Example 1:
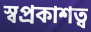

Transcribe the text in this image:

স্বপ্রকাশত্ব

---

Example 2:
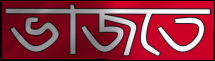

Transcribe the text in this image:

ভাজতে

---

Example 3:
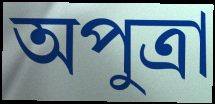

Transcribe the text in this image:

অপুত্রা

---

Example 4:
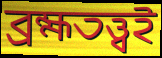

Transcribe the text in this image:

ব্রহ্মতত্ত্বই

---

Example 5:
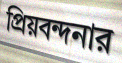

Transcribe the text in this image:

প্রিয়বন্দনার